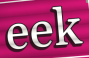
eek